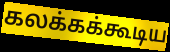
கலக்கக்கூடிய